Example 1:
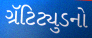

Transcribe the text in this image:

ગ્રૅટિટ્યુડનો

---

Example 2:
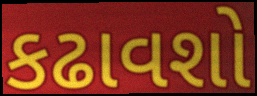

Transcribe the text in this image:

કઢાવશો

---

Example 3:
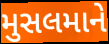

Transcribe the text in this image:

મુસલમાને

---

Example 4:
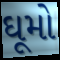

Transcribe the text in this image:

ઘૂમો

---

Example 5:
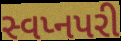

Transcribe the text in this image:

સ્વપ્નપરી